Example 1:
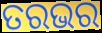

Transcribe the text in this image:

ତରଭର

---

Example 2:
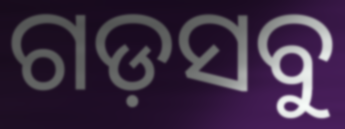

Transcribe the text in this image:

ଗଡ଼ସବୁ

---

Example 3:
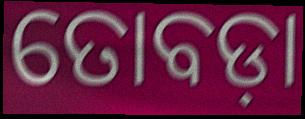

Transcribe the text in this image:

ତୋବଡ଼ା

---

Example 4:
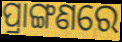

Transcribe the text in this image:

ପ୍ରାଙ୍ଗଣରେ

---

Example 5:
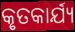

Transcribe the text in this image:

କୃତକାର୍ଯ୍ୟ